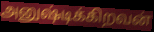
அனுஷ்டிக்கிறவன்